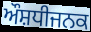
ਔਸ਼ਧੀਜਨਕ